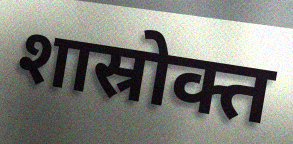
शास्रोक्त